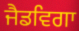
ਜੈਡਵਿਗਾ